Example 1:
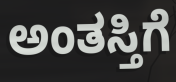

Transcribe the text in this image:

ಅಂತಸ್ತಿಗೆ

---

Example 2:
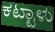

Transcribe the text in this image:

ಕಟ್ಟಾಳು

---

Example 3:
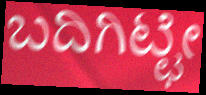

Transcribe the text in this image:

ಬದಿಗಿಟ್ಟೇ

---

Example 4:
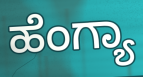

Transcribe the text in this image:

ಹೆಂಗ್ಯಾ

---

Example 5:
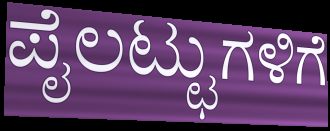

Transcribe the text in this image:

ಪೈಲಟ್ಟುಗಳಿಗೆ